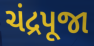
ચંદ્રપૂજા